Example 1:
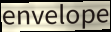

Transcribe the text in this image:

envelope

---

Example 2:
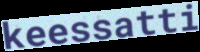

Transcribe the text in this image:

keessatti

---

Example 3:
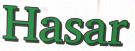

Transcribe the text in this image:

Hasar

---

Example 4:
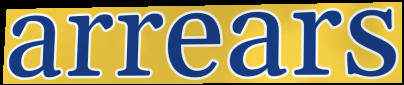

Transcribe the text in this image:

arrears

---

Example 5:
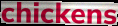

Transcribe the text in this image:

chickens